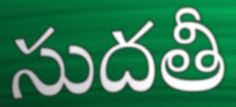
సుదతీ